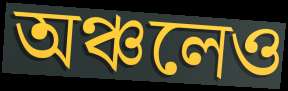
অঞ্চলেও